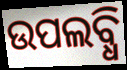
ଉପଲବ୍ଧି